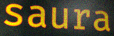
saura